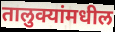
तालुक्यांमधील